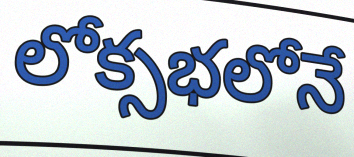
లోక్సభలోనే